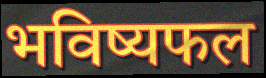
भविष्यफल